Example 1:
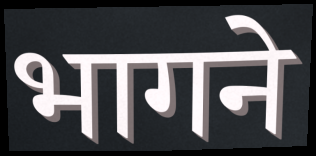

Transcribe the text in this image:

भागने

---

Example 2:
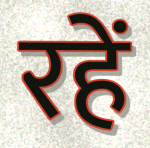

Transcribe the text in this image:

रहें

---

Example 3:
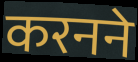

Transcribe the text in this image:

करनने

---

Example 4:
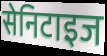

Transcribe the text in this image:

सेनिटाइज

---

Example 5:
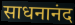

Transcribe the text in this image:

साधनानंद